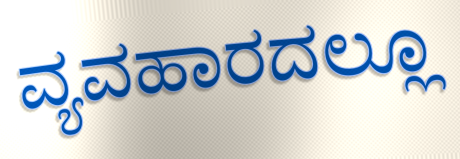
ವ್ಯವಹಾರದಲ್ಲೂ